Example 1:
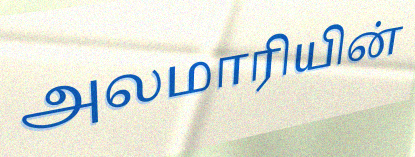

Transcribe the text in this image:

அலமாரியின்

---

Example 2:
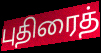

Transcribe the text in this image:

புதிரைத்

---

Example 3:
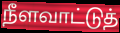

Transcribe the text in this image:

நீளவாட்டுத்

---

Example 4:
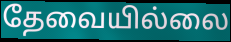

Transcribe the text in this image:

தேவையில்லை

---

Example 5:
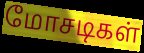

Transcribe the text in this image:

மோசடிகள்